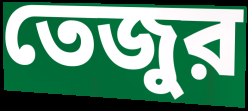
তেজুর